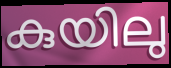
കുയിലു